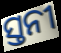
ସ୍ତନୀ